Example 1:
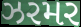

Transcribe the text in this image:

ઝરમર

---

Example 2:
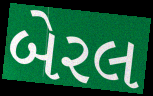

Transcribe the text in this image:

બેરલ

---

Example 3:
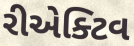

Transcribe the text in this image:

રીએક્ટિવ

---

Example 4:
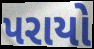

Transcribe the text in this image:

પરાયો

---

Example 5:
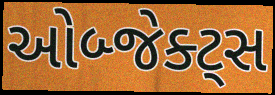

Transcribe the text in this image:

ઓબ્જેક્ટ્સ